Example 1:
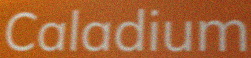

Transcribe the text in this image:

Caladium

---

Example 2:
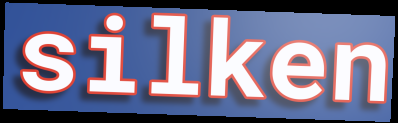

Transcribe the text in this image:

silken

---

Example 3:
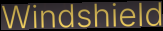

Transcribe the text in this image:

Windshield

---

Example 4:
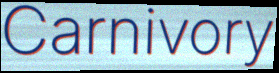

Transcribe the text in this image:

Carnivory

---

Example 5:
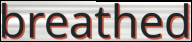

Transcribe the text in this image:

breathed